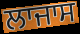
ਲਾਜਾਸ